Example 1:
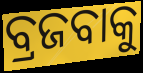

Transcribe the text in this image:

ବ୍ରଜବାକୁ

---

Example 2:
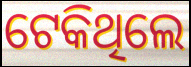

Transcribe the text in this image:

ଟେକିଥିଲେ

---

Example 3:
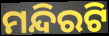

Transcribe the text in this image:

ମନ୍ଦିରଟି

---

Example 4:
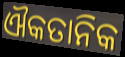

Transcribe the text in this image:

ଐକତାନିକ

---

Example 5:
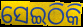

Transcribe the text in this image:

ସେଇଠିକି